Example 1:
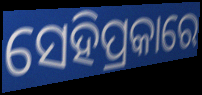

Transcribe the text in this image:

ସେହିପ୍ରକାରେ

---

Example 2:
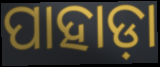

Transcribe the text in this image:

ପାହାଡ଼ା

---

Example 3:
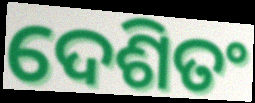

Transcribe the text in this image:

ଦେଶିତଂ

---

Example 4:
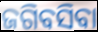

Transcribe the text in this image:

ଜଗିବସିବା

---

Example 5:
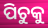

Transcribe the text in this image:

ପିଚୁକୁ